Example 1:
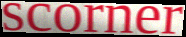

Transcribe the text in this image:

scorner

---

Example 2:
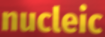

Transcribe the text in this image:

nucleic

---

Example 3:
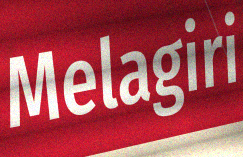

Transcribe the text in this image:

Melagiri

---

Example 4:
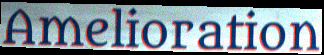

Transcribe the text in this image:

Amelioration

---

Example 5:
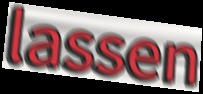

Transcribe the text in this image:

lassen